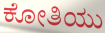
ಕೋತಿಯು